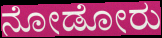
ನೋಡೋರು